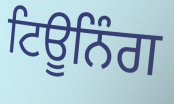
ਟਿਊਨਿੰਗ